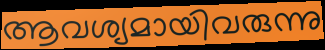
ആവശ്യമായിവരുന്നു